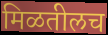
मिळतीलच